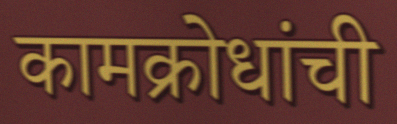
कामक्रोधांची